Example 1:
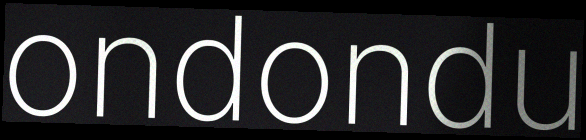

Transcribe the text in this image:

ondondu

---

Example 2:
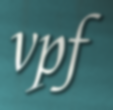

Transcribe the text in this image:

vpf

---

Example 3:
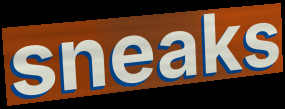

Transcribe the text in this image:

sneaks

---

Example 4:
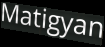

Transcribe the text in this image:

Matigyan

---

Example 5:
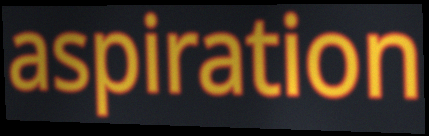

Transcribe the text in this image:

aspiration